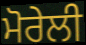
ਮੋਰੇਲੀ